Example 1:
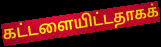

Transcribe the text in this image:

கட்டளையிட்டதாகக்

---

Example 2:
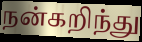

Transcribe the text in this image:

நன்கறிந்து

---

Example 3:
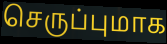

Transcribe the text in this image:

செருப்புமாக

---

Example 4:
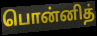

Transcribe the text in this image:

பொன்னித்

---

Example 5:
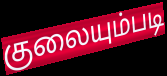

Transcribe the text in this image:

குலையும்படி